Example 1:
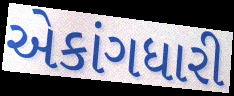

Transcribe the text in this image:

એકાંગધારી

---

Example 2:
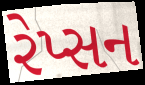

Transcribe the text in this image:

રેપ્સન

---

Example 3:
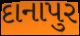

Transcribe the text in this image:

દાનાપુર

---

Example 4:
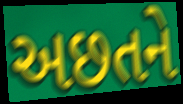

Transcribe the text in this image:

અછતને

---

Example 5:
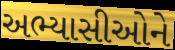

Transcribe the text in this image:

અભ્યાસીઓને